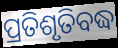
ପ୍ରତିଶୃତିବଦ୍ଧ